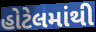
હોટેલમાંથી